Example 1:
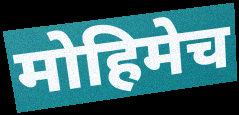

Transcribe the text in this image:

मोहिमेच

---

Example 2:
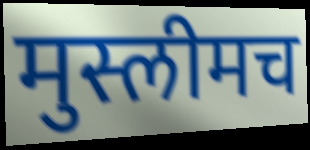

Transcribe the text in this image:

मुस्लीमच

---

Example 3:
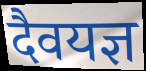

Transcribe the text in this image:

दैवयज्ञ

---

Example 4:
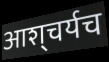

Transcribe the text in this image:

आश्चर्यच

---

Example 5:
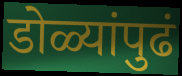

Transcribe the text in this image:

डोळ्यांपुढं